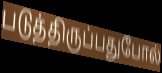
படுத்திருப்பதுபோல்